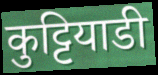
कुट्टियाडी